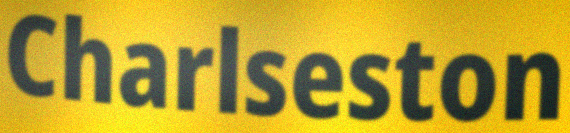
Charlseston